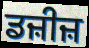
ਡਜ਼ੀਜ਼